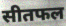
सीतफल